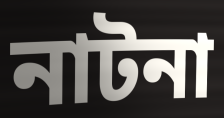
নাটনা